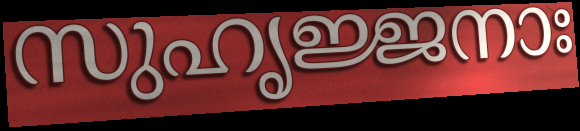
സുഹൃജ്ജനാഃ